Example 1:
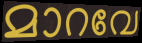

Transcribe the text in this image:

മാറവേ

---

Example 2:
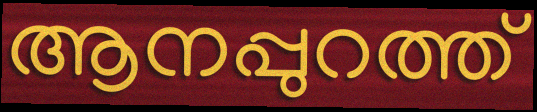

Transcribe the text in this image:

ആനപ്പുറത്ത്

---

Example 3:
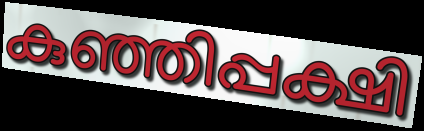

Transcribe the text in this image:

കുഞ്ഞിപ്പക്ഷി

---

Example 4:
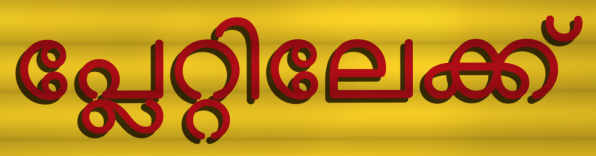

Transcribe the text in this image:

പ്ലേറ്റിലേക്ക്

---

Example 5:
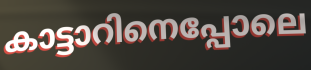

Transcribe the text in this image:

കാട്ടാറിനെപ്പോലെ